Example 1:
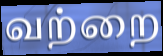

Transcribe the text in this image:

வற்றை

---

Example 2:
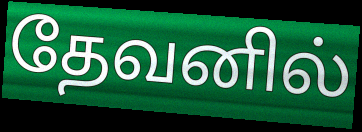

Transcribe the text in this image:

தேவனில்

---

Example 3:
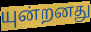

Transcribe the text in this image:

யுன்றனது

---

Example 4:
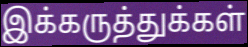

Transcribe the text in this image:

இக்கருத்துக்கள்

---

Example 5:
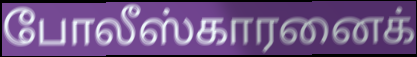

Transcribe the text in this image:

போலீஸ்காரனைக்